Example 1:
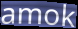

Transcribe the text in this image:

amok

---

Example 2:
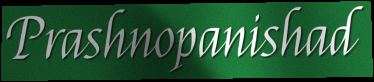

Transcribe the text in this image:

Prashnopanishad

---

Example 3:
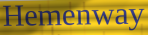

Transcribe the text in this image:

Hemenway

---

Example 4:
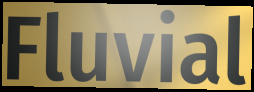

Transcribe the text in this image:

Fluvial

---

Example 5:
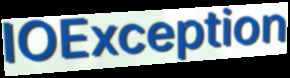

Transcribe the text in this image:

IOException